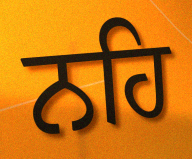
ਨਹਿ